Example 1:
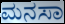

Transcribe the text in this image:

ಮನಸಾ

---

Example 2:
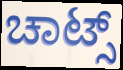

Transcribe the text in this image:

ಚಾಟ್ಸ್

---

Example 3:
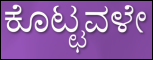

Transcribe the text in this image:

ಕೊಟ್ಟವಳೇ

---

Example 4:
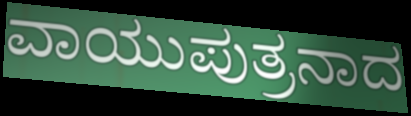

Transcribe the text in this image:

ವಾಯುಪುತ್ರನಾದ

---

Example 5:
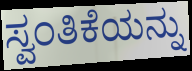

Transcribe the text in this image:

ಸ್ವಂತಿಕೆಯನ್ನು